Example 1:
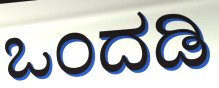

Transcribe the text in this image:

ಒಂದಡಿ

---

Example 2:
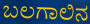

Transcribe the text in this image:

ಬಲಗಾಲಿನ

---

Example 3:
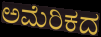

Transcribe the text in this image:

ಅಮೆರಿಕದ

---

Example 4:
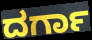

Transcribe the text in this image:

ದರ್ಗಾ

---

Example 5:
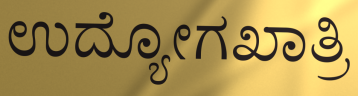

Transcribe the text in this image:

ಉದ್ಯೋಗಖಾತ್ರಿ